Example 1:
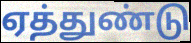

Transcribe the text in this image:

ஏத்துண்டு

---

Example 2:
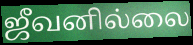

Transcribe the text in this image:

ஜீவனில்லை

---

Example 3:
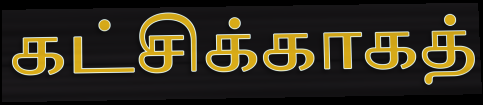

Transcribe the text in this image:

கட்சிக்காகத்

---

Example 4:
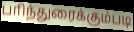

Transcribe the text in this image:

பரிந்துரைக்கும்படி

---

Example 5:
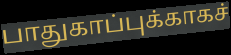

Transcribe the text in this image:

பாதுகாப்புக்காகச்